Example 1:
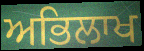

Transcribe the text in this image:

ਅਭਿਲਾਖ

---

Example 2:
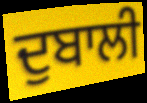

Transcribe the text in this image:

ਦੁਬਾਲੀ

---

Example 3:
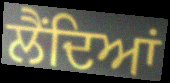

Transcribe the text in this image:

ਲੈਂਦਿਆਂ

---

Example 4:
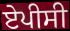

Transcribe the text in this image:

ਏਪੀਸੀ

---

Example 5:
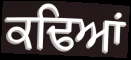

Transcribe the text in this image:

ਕਢਿਆਂ